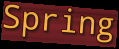
Spring